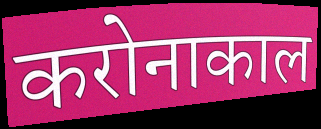
करोनाकाल